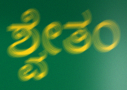
ಶ್ವೇತಂ